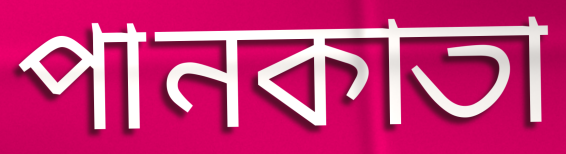
পানকাতা